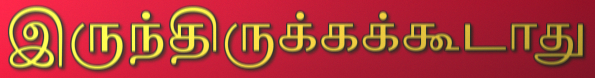
இருந்திருக்கக்கூடாது